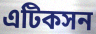
এটিকসন